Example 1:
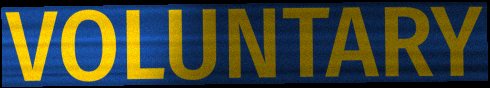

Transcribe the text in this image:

VOLUNTARY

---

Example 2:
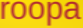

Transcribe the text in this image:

roopa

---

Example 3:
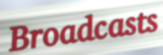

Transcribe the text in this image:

Broadcasts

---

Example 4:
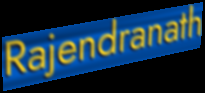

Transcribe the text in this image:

Rajendranath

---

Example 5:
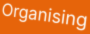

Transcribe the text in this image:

Organising